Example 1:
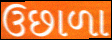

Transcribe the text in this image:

ઉછાળા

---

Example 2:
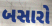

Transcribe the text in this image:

બસારો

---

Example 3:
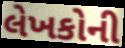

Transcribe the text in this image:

લેખકોની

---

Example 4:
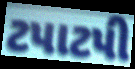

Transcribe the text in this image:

ટપાટપી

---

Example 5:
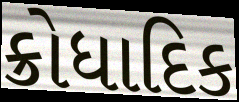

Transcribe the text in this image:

ક્રોધાદિક